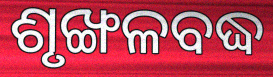
ଶୃଙ୍ଖଳବଦ୍ଧ